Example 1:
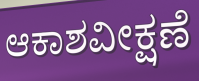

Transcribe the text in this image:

ಆಕಾಶವೀಕ್ಷಣೆ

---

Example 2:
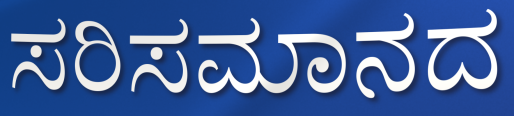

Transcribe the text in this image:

ಸರಿಸಮಾನದ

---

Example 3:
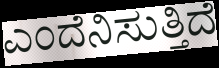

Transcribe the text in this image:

ಎಂದೆನಿಸುತ್ತಿದೆ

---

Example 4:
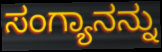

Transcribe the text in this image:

ಸಂಗ್ಯಾನನ್ನು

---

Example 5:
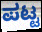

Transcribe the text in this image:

ಪಟ್ಟ